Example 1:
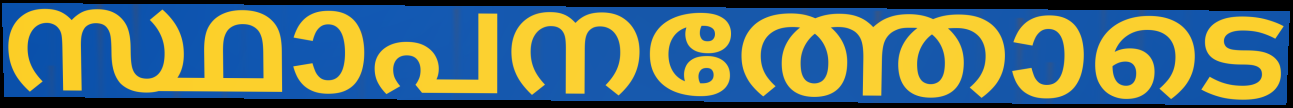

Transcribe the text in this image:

സ്ഥാപനത്തോടെ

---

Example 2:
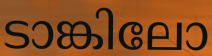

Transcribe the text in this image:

ടാങ്കിലോ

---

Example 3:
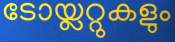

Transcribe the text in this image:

ടോയ്ലറ്റുകളും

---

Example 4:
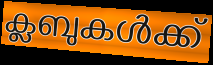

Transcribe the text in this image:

ക്ലബുകൾക്ക്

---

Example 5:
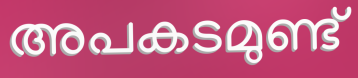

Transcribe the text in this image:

അപകടമുണ്ട്